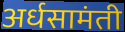
अर्धसामंती